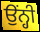
ਉਂਨ੍ਹੀ